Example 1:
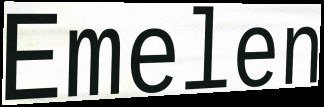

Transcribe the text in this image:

Emelen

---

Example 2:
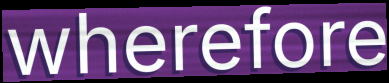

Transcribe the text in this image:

wherefore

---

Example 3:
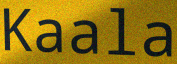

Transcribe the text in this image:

Kaala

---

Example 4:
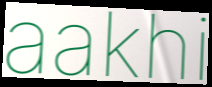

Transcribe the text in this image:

aakhi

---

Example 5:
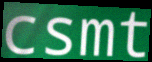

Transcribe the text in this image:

csmt